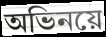
অভিনয়ে